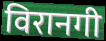
विरानगी